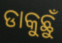
ଡାକୁଛୁଁ